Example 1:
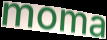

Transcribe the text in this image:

moma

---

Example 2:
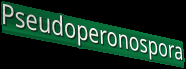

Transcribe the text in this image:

Pseudoperonospora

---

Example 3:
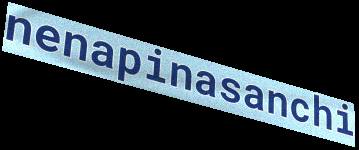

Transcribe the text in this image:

nenapinasanchi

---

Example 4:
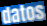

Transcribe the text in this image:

datos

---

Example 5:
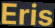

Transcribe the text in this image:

Eris